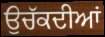
ਉਚੱਕਦੀਆਂ